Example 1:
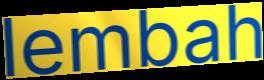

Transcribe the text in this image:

lembah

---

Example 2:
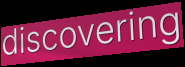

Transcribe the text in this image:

discovering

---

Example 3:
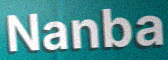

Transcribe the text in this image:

Nanba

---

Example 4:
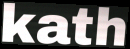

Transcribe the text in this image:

kath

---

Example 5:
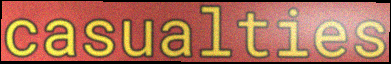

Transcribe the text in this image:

casualties